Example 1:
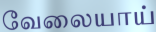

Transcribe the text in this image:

வேலையாய்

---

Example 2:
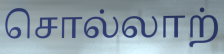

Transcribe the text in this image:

சொல்லாற்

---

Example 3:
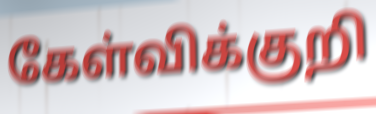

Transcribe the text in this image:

கேள்விக்குறி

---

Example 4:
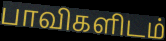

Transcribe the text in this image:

பாவிகளிடம்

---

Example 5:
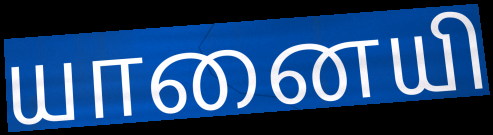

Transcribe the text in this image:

யானையி